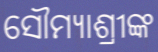
ସୌମ୍ୟାଶ୍ରୀଙ୍କ